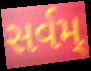
સર્વમ્